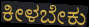
ಕೀಳಬೇಕು